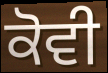
ਕੋਵੀ